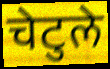
चेटुले